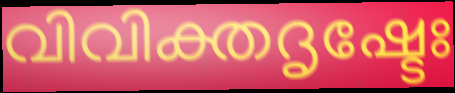
വിവിക്തദൃഷ്ടേഃ